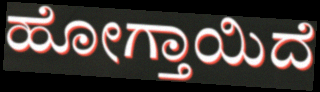
ಹೋಗ್ತಾಯಿದೆ